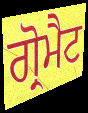
ਗ੍ਰੋਮੈਟ